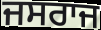
ਜਸਰਾਜ